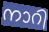
നാറി